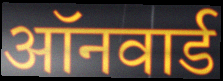
ऑनवार्ड